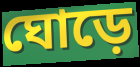
ঘোড়ে